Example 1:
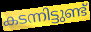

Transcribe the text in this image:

കടന്നിട്ടുണ്ട്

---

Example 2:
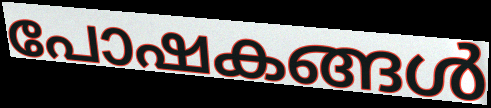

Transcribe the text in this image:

പോഷകങ്ങൾ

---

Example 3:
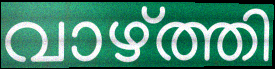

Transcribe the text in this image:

വാഴ്ത്തി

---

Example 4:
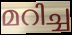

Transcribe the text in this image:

മറിച്ച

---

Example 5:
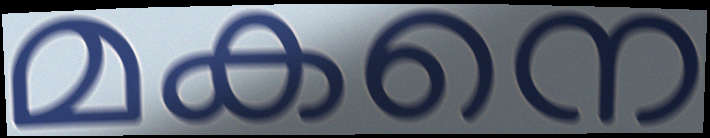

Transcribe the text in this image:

മകനെ